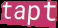
tapt